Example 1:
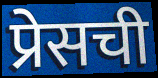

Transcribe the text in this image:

प्रेसची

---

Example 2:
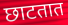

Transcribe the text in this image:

छाटतात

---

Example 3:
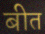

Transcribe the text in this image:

बीत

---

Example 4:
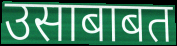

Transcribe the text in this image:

उसाबाबत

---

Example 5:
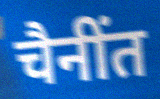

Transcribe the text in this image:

चैनींत